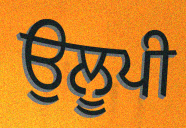
ਉਲੂਪੀ